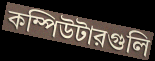
কম্পিউটারগুলি